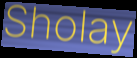
Sholay